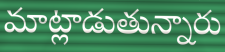
మాట్లాడుతున్నారు